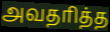
அவதரித்த